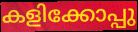
കളിക്കോപ്പു